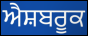
ਐਸ਼ਬਰੂਕ